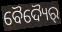
ବୈଦ୍ୟୈର୍